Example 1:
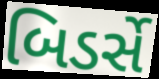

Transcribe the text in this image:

બિડર્સે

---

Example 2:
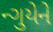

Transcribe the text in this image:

ન્ગુયેને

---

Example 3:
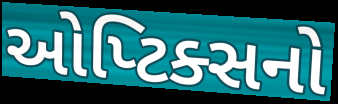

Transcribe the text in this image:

ઓપ્ટિક્સનો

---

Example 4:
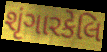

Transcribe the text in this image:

શૃંગારકેલિ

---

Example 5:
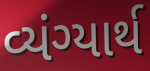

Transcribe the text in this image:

વ્યંગ્યાર્થ